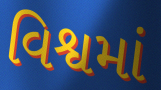
વિશ્વમાં